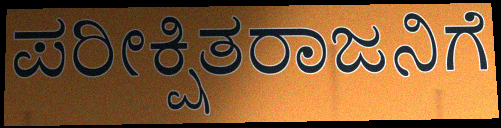
ಪರೀಕ್ಷಿತರಾಜನಿಗೆ